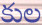
కుల